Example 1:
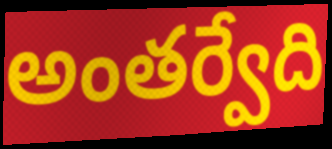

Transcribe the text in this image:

అంతర్వేది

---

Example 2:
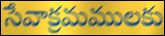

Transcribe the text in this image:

సేవాక్రమములకు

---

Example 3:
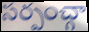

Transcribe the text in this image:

సర్పంచ్గా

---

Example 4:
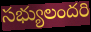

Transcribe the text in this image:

సభ్యులందరి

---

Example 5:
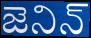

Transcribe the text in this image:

జెనిన్